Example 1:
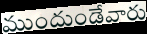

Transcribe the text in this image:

ముందుండేవారు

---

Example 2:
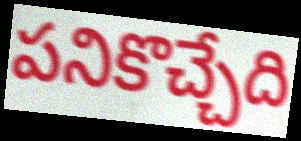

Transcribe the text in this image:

పనికొచ్చేది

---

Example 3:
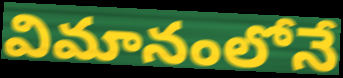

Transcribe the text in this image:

విమానంలోనే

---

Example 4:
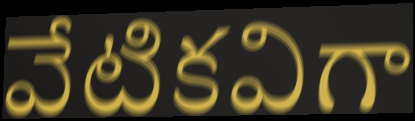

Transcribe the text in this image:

వేటికవిగా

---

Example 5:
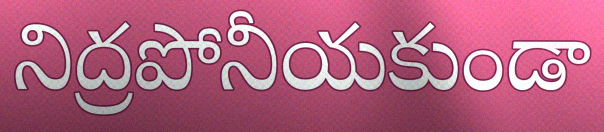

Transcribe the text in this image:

నిద్రపోనీయకుండా